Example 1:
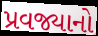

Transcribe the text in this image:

પ્રવજ્યાનો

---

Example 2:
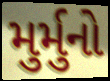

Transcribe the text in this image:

મુર્મુનો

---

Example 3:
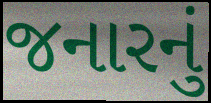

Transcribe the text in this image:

જનારનું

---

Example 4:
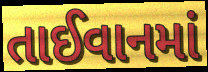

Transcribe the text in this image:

તાઈવાનમાં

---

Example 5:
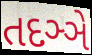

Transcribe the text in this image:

તદઞ્ઞે